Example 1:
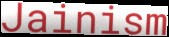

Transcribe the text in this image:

Jainism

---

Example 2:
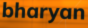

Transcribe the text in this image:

bharyan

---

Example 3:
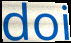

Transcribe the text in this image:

doi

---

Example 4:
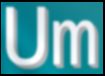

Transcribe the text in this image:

Um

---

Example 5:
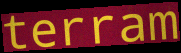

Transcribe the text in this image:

terram